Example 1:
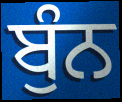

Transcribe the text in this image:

ਬੁੰਨ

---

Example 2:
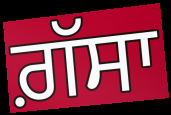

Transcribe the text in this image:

ਗ਼ੱਸਾ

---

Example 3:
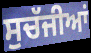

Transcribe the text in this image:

ਸੁਚੱਜੀਆਂ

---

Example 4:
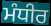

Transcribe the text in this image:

ਮੰਧੀਰ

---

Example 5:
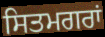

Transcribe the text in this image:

ਸਿਤਮਗਰਾਂ